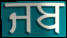
ਜਬ